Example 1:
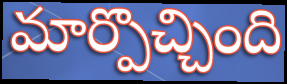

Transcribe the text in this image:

మార్పొచ్చింది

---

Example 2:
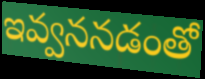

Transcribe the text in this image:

ఇవ్వననడంతో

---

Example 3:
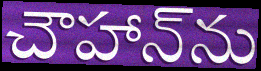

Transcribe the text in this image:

చౌహాన్‌ను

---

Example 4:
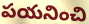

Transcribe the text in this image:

పయనించి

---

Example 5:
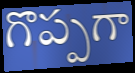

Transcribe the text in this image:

గొప్పగా